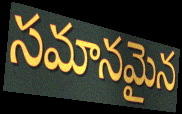
సమానమైన